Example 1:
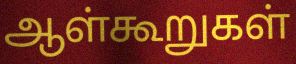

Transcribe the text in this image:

ஆள்கூறுகள்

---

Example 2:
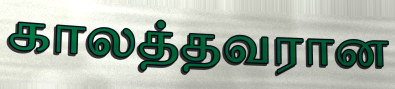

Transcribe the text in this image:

காலத்தவரான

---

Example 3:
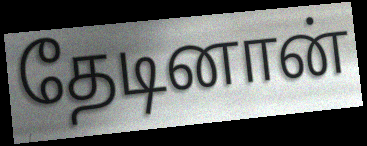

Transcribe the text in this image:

தேடினான்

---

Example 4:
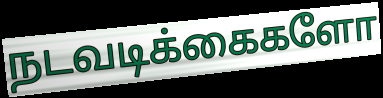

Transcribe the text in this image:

நடவடிக்கைகளோ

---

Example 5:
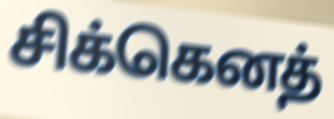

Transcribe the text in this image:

சிக்கெனத்